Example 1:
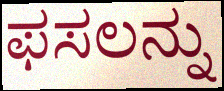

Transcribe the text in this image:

ಫಸಲನ್ನು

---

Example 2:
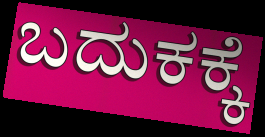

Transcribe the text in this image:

ಬದುಕಕ್ಕೆ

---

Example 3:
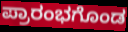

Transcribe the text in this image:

ಪ್ರಾರಂಭಗೊಂಡ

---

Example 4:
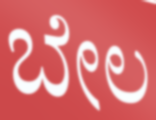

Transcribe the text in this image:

ಬೇಲ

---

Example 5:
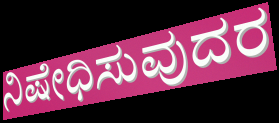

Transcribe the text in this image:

ನಿಷೇಧಿಸುವುದರ